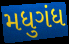
મધુગંધ